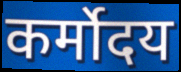
कर्मोदय